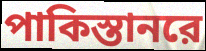
পাকিস্তানরে